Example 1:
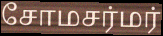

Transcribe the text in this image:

சோமசர்மர்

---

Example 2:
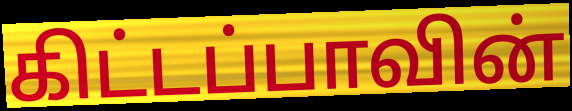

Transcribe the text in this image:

கிட்டப்பாவின்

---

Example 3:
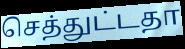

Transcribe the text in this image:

செத்துட்டதா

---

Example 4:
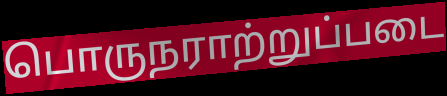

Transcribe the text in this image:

பொருநராற்றுப்படை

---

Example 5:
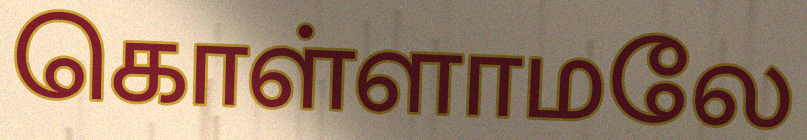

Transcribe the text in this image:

கொள்ளாமலே